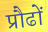
प्रौढों